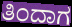
ತಿಂದಾಗ